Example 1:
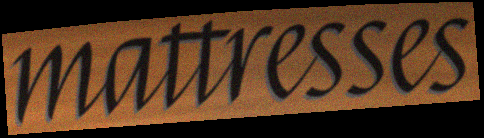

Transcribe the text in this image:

mattresses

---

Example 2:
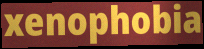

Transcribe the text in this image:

xenophobia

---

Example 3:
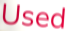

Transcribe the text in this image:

Used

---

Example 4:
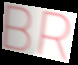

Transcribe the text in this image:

BR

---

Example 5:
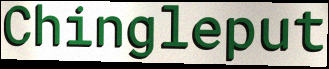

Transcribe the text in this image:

Chingleput